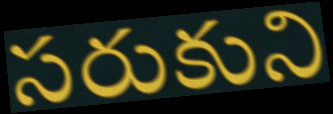
సరుకుని